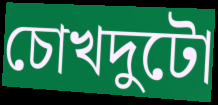
চোখদুটো